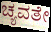
ಚ್ಯವತೇ